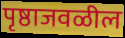
पृष्ठाजवळील